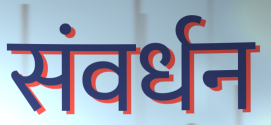
संवर्धन